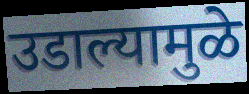
उडाल्यामुळे